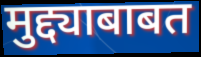
मुद्द्याबाबत